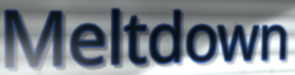
Meltdown